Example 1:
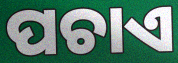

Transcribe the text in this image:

ପଚାଏ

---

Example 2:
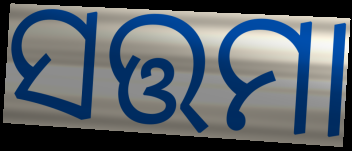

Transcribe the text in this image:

ସତ୍ତମା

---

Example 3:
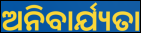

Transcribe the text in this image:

ଅନିବାର୍ଯ୍ୟତା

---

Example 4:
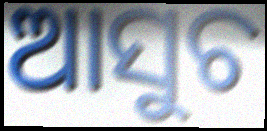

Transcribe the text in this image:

ଆସୁଚ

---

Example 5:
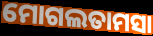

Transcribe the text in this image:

ମୋଗଲତାମସା